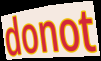
donot